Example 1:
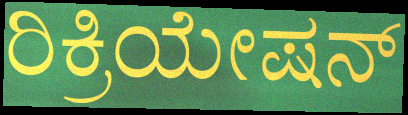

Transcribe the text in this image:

ರಿಕ್ರಿಯೇಷನ್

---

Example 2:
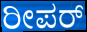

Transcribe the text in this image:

ರೀಪರ್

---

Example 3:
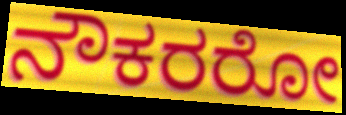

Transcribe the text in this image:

ನೌಕರರೋ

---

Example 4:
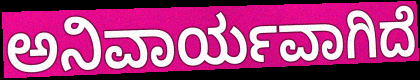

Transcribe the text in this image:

ಅನಿವಾರ್ಯವಾಗಿದೆ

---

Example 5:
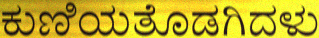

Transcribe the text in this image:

ಕುಣಿಯತೊಡಗಿದಳು